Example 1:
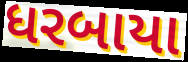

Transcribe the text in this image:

ધરબાયા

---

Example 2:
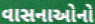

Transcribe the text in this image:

વાસનાઓનો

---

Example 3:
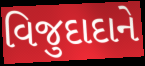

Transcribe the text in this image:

વિજુદાદાને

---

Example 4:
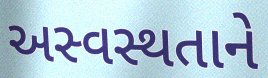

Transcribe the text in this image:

અસ્વસ્થતાને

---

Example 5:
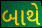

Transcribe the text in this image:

બાથે